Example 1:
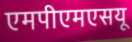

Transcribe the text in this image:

एमपीएमएसयू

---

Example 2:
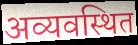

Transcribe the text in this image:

अव्यवस्थित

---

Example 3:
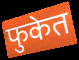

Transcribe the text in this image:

फुकेत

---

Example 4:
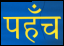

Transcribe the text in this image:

पहँच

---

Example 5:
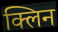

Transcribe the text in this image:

क्लिन